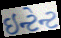
ઇન્ટેન્ટ